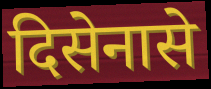
दिसेनासे